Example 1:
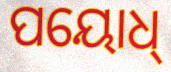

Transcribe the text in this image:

ପୟୋଧ୍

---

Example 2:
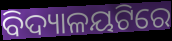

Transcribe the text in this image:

ବିଦ୍ୟାଳୟଟିରେ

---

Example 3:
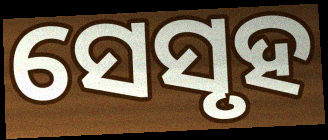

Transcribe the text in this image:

ସେସୃହ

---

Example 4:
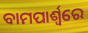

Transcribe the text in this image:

ବାମପାର୍ଶ୍ଵରେ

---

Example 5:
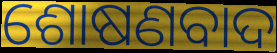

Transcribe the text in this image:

ଶୋଷଣବାଦ